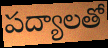
పద్యాలతో